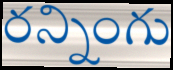
రన్నింగు